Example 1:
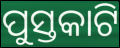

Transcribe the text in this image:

ପୁସ୍ତକାଟି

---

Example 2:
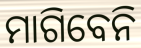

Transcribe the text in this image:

ମାଗିବେନି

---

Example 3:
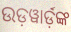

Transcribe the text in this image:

ଉଡ଼ୱାର୍ଡ଼ଙ୍କ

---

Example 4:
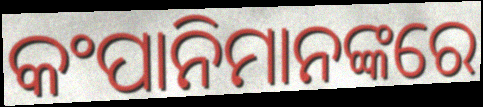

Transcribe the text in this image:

କଂପାନିମାନଙ୍କରେ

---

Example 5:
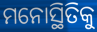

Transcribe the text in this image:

ମନୋସ୍ଥିତିକୁ